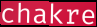
chakre